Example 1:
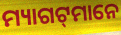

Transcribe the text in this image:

ମ୍ୟାଗଟ୍‌ମାନେ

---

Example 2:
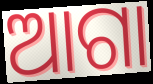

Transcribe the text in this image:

ଆଗା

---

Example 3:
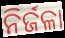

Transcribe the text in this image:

ନିର୍ଜଳା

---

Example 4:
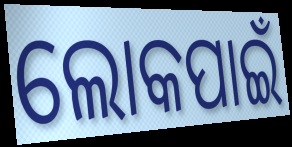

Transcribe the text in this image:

ଲୋକପାଇଁ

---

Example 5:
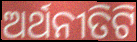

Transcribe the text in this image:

ଅର୍ଥନୀତିଟି